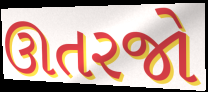
ઊતરજો